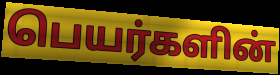
பெயர்களின்